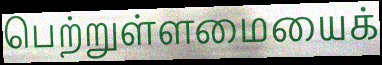
பெற்றுள்ளமையைக்